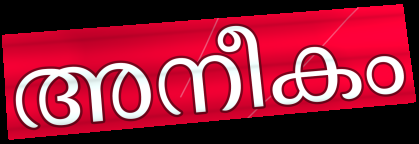
അനീകം